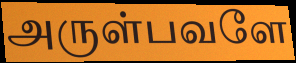
அருள்பவளே